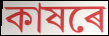
কাষৰে